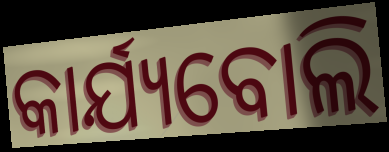
କାର୍ଯ୍ୟବୋଲି